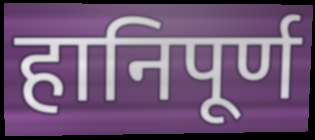
हानिपूर्ण